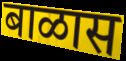
बाळास